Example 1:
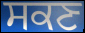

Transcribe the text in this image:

ਸਕਣ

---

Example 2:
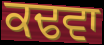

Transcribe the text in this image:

ਕਢਵਾ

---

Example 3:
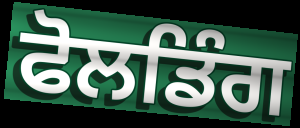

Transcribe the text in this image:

ਫੋਲਡਿੰਗ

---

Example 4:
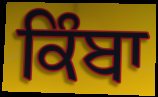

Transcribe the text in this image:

ਕਿੰਬਾ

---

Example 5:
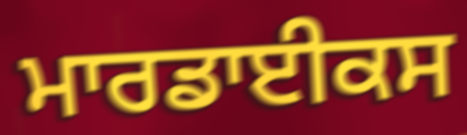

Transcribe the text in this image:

ਮਾਰਡਾਈਕਸ